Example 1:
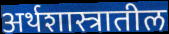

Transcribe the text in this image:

अर्थशास्त्रातील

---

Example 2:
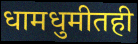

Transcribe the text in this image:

धामधुमीतही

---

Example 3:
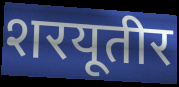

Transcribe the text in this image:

शरयूतीर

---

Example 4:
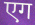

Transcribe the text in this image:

एग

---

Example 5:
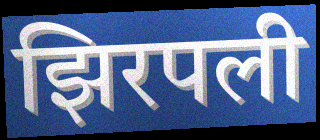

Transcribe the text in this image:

झिरपली